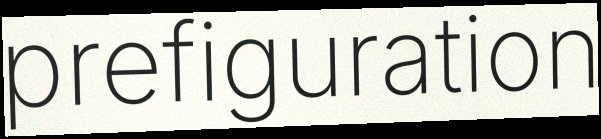
prefiguration